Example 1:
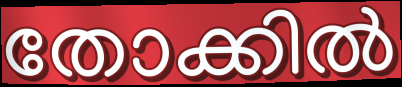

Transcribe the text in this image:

തോക്കിൽ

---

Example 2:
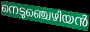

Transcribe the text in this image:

നെടുഞ്ചെഴിയൻ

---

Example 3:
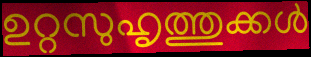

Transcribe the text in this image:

ഉറ്റസുഹൃത്തുക്കൾ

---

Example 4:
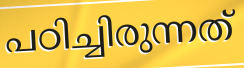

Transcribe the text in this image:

പഠിച്ചിരുന്നത്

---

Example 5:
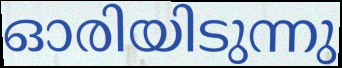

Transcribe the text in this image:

ഓരിയിടുന്നു